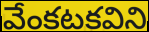
వేంకటకవిని